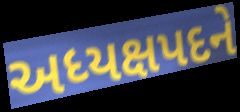
અધ્યક્ષપદને